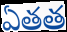
ఏతత